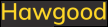
Hawgood